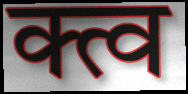
क्त्व